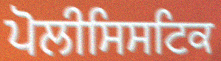
ਪੋਲੀਸਿਸਟਿਕ